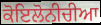
ਕੋਇਲੋਨੀਚੀਆ